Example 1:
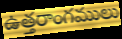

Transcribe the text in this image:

ఉత్తరాంగములు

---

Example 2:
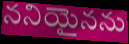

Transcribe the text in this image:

ననియైనను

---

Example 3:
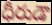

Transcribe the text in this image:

ధీరుడౌ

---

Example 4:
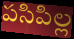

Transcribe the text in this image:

పసిపిల్ల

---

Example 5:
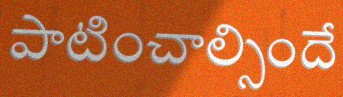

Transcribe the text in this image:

పాటించాల్సిందే